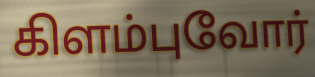
கிளம்புவோர்